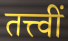
तत्त्वीं